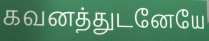
கவனத்துடனேயே